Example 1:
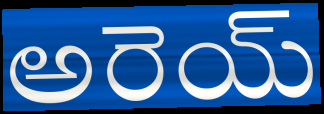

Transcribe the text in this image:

అరెయ్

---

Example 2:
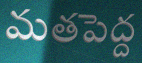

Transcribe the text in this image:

మతపెద్ద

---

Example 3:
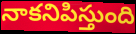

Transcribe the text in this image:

నాకనిపిస్తుంది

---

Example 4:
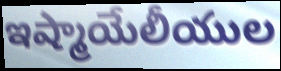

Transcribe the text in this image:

ఇష్మాయేలీయుల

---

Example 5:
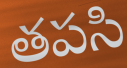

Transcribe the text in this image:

తపసి